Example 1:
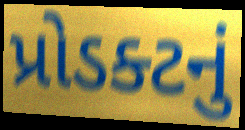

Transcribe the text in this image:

પ્રોડક્ટનું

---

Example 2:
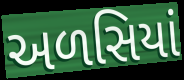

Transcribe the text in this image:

અળસિયાં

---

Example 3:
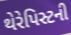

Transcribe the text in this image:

થેરેપિસ્ટની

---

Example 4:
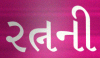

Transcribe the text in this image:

રત્નની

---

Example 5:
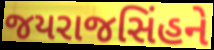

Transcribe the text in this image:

જયરાજસિંહને